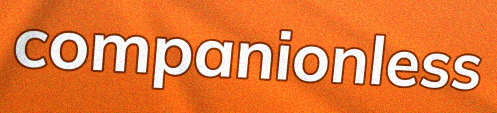
companionless